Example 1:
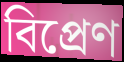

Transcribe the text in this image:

বিপ্রেণ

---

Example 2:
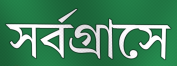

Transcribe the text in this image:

সর্বগ্রাসে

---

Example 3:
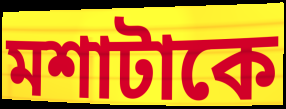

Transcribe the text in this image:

মশাটাকে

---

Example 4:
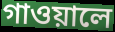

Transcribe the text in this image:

গাওয়ালে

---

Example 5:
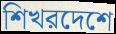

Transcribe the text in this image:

শিখরদেশে